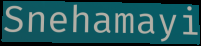
Snehamayi